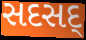
સદસદ્